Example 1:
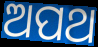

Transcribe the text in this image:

ଅପଥ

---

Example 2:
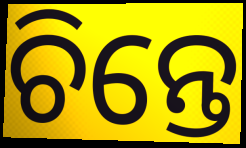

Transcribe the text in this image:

ଚିନ୍ତେ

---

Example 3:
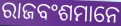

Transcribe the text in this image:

ରାଜବଂଶମାନେ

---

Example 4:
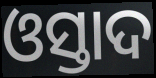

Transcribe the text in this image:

ଓସ୍ତାଦ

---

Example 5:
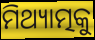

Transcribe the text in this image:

ମିଥ୍ୟାତ୍ମକୁ